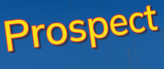
Prospect